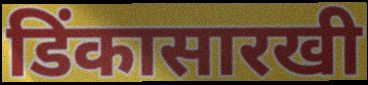
डिंकासारखी